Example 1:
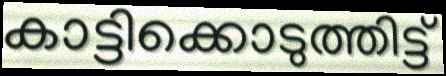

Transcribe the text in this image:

കാട്ടിക്കൊടുത്തിട്ട്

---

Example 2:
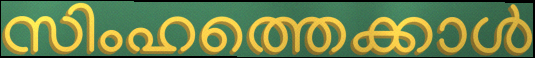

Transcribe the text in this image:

സിംഹത്തെക്കാൾ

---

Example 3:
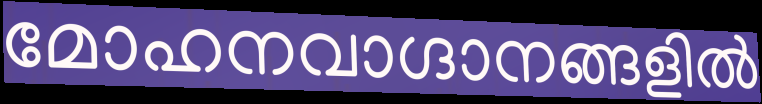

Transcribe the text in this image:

മോഹനവാഗ്ദാനങ്ങളിൽ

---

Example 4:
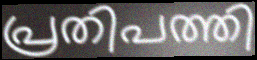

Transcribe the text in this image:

പ്രതിപത്തി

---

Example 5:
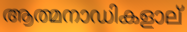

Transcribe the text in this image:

ആത്മനാഡികളാല്